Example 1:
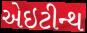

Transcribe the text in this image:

એઇટીન્થ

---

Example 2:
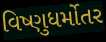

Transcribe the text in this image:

વિષ્ણુધર્મોતર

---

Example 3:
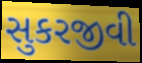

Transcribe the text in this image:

સુકરજીવી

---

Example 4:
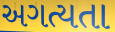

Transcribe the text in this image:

અગત્યતા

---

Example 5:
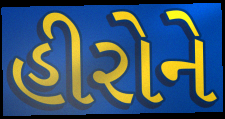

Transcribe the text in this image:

હીરોને